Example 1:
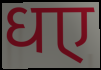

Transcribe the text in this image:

धए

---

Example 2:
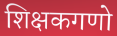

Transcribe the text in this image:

शिक्षकगणो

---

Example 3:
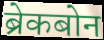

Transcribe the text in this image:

ब्रेकबोन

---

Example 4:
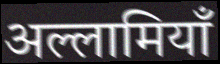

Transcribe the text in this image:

अल्लामियाँ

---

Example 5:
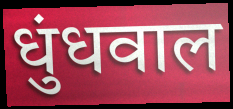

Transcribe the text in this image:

धुंधवाल